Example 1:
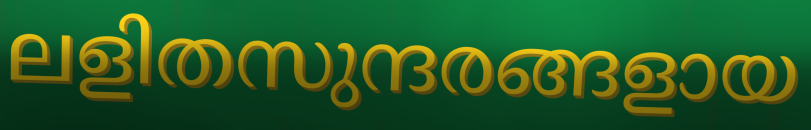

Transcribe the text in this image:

ലളിതസുന്ദരങ്ങളായ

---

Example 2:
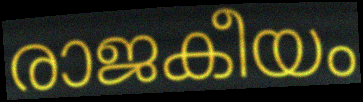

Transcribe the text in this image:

രാജകീയം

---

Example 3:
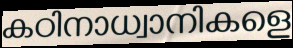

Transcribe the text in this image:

കഠിനാധ്വാനികളെ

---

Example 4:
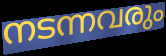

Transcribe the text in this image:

നടന്നവരും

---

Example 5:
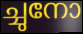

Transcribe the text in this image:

ച്ചുനോ